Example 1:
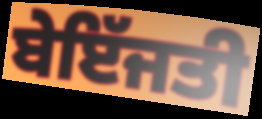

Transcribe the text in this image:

ਬੇਇੱਜਤੀ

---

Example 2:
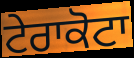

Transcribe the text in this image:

ਟੇਰਾਕੋਟਾ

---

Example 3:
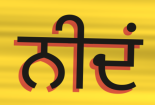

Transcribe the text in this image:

ਨੀਦਂ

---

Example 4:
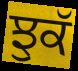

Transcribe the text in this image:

ਝੁਕੱ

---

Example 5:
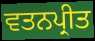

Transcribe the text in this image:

ਵਤਨਪ੍ਰੀਤ